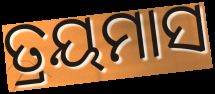
ତ୍ରୟମାସ